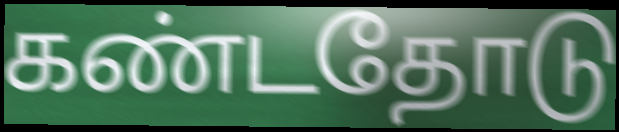
கண்டதோடு